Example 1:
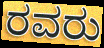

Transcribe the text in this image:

ರವರು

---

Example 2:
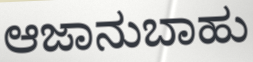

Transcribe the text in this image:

ಆಜಾನುಬಾಹು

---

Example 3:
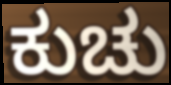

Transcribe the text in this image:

ಕುಚು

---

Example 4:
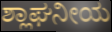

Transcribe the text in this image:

ಶ್ಲಾಘನೀಯ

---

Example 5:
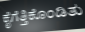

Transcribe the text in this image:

ಕೈಗೆತ್ತಿಕೊಂಡಿತು